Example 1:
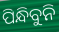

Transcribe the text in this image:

ପିନ୍ଧିବୁନି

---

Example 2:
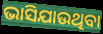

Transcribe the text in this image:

ଭାସିଯାଉଥିବା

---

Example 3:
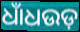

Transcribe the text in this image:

ଧାଁଧଉଡ଼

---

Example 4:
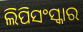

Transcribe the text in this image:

ଲିପିସଂସ୍କାର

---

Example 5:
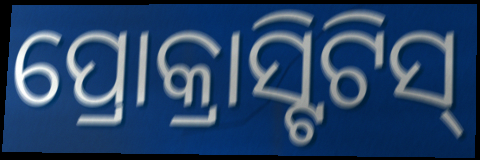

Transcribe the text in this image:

ପ୍ରୋକ୍ରାସ୍ଟିଟିସ୍